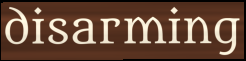
disarming